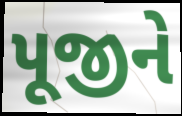
પૂજીને